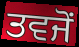
ਤਵਜੋਂ